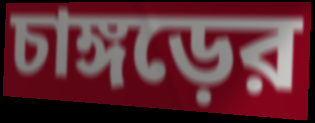
চাঙ্গড়ের